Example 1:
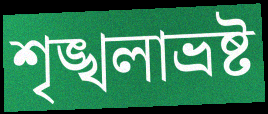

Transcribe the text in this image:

শৃঙ্খলাভ্রষ্ট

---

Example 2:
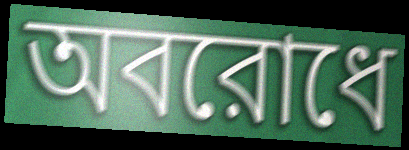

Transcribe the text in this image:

অবরোধে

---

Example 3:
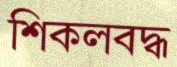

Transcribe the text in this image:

শিকলবদ্ধ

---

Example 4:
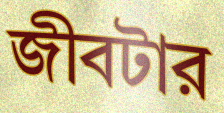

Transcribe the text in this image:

জীবটার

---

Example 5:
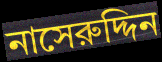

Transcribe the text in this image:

নাসেরুদ্দিন